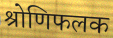
श्रोणिफलक